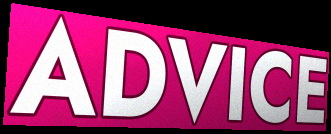
ADVICE